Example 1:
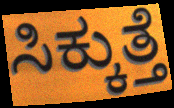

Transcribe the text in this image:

ಸಿಕ್ಕುತ್ತೆ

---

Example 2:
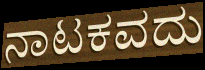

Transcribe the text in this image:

ನಾಟಕವದು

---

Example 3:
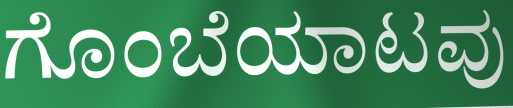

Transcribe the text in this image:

ಗೊಂಬೆಯಾಟವು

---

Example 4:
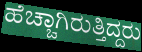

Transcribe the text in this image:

ಹೆಚ್ಚಾಗಿರುತ್ತಿದ್ದರು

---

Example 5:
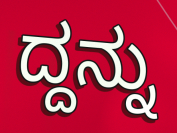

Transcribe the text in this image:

ದ್ದನ್ನು